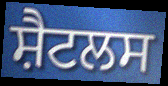
ਸ਼ੈਟਲਸ